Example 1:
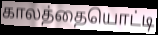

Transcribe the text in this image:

காலத்தையொட்டி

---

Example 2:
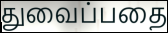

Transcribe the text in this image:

துவைப்பதை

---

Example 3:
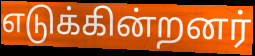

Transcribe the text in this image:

எடுக்கின்றனர்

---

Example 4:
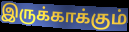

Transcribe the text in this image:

இருக்காக்கும்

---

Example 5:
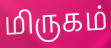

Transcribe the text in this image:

மிருகம்